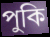
পুকি